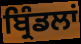
ਬ੍ਰਿੰਡਲਾਂ